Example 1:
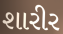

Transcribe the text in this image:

શારીર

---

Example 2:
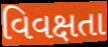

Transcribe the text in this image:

વિવક્ષતા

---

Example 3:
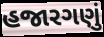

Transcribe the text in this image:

હજારગણું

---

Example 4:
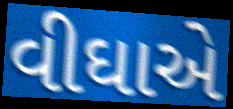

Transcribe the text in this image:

વીઘાએ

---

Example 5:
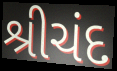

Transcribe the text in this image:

શ્રીચંદ